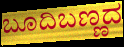
ಬೂದಿಬಣ್ಣದ